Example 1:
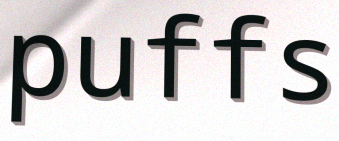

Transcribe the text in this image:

puffs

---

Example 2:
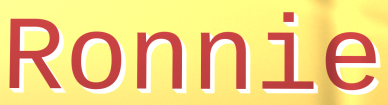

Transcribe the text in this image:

Ronnie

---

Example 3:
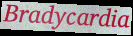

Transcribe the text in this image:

Bradycardia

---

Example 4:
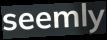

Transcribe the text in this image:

seemly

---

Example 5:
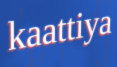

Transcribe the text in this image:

kaattiya